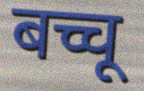
बच्चू